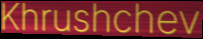
Khrushchev